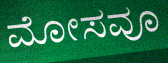
ಮೋಸವೂ